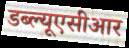
डब्ल्यूएसीआर